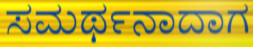
ಸಮರ್ಥನಾದಾಗ